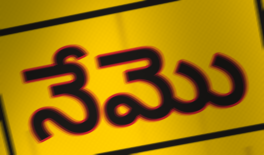
నేమొ